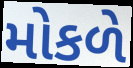
મોકળે